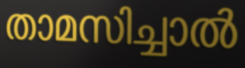
താമസിച്ചാൽ